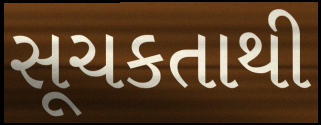
સૂચકતાથી